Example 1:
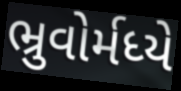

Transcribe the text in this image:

ભ્રુવોર્મધ્યે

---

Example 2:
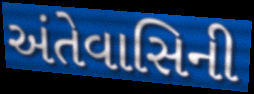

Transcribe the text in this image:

અંતેવાસિની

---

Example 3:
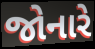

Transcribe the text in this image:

જોનારે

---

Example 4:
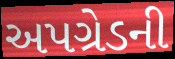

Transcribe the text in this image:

અપગ્રેડની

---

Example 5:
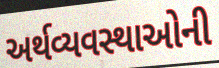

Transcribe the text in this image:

અર્થવ્યવસ્થાઓની